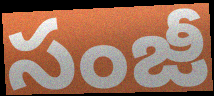
సంజీ